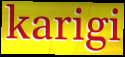
karigi